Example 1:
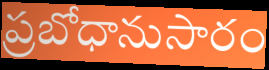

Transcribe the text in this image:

ప్రబోధానుసారం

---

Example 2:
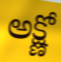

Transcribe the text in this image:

అక్ష్ణో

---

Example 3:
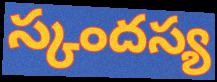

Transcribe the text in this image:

స్కందస్య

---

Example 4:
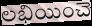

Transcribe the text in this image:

లభియించె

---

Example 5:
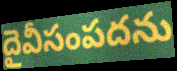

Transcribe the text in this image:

దైవీసంపదను